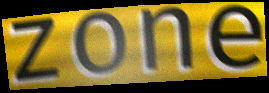
zone